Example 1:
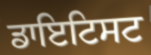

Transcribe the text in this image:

ਡਾਇਟਿਸਟ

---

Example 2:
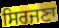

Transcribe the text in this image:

ਸਿਰਜਣਾ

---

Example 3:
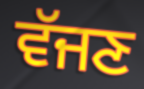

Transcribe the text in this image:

ਵੱਜਣ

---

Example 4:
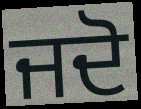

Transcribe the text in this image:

ਜਦੋ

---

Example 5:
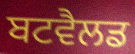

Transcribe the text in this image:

ਬਟਵੈਲਡ